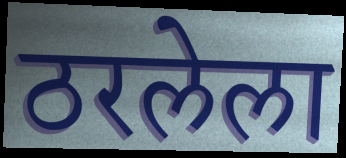
ठरलेला